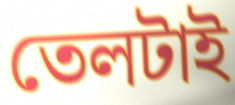
তেলটাই